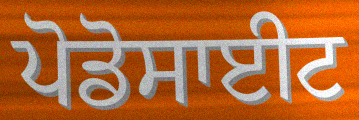
ਪੋਡੋਸਾਈਟ